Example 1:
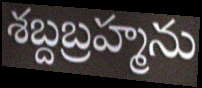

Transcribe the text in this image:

శబ్దబ్రహ్మను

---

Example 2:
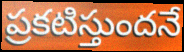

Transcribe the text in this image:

ప్రకటిస్తుందనే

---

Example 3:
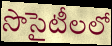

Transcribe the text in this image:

సొసైటీలలో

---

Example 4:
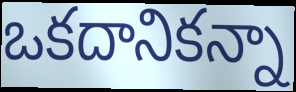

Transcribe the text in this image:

ఒకదానికన్నా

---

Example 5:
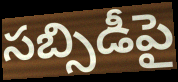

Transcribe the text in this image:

సబ్సిడీపై